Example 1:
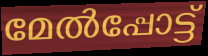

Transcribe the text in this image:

മേൽപ്പോട്ട്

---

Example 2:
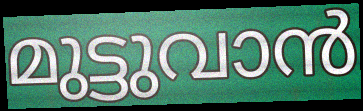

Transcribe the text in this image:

മുട്ടുവാൻ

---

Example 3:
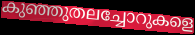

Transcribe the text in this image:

കുഞ്ഞുതലച്ചോറുകളെ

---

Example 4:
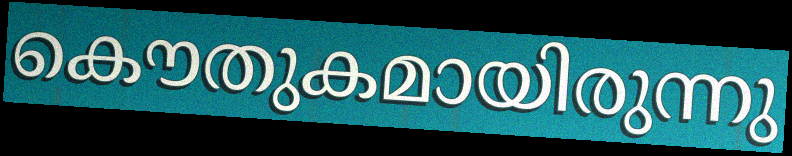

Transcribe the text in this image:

കൌതുകമായിരുന്നു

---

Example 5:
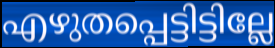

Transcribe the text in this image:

എഴുതപ്പെട്ടിട്ടില്ലേ